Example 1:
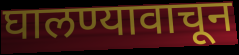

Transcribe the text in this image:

घालण्यावाचून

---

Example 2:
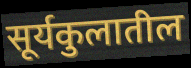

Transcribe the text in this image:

सूर्यकुलातील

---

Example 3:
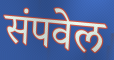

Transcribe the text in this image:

संपवेल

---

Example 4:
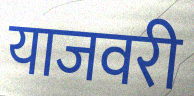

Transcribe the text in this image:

याजवरी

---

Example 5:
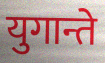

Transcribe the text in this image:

युगान्ते